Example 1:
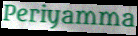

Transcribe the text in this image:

Periyamma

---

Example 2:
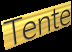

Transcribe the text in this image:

Tente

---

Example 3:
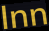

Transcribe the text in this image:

Inn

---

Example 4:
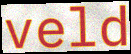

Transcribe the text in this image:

veld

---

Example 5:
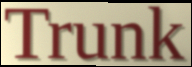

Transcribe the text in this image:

Trunk